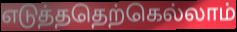
எடுத்ததெற்கெல்லாம்